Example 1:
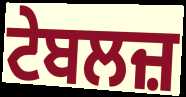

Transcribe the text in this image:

ਟੇਬਲਜ਼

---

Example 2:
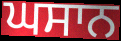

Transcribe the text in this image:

ਘਸਾਨ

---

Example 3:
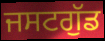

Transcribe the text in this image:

ਜਸਟਗੁੱਡ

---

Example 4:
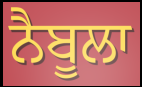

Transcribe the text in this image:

ਨੈਬੂਲਾ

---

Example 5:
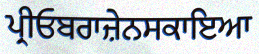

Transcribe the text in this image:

ਪ੍ਰੀਓਬਰਾਜ਼ੇਨਸਕਾਇਆ